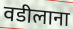
वडीलाना